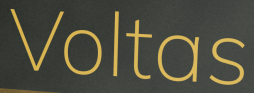
Voltas